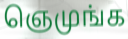
ஞெமுங்க